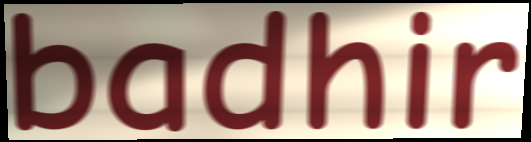
badhir